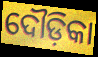
ଦୌଡ଼ିକା